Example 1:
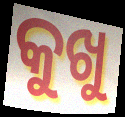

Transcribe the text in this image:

କୁଖୁ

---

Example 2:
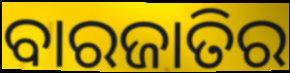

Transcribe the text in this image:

ବାରଜାତିର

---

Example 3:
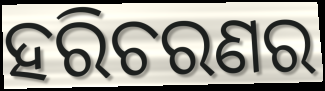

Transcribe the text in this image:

ହରିଚରଣର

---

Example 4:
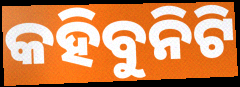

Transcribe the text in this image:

କହିବୁନିଟି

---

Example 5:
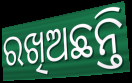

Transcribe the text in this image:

ରଖିଅଛନ୍ତି